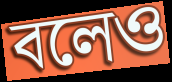
বলেও